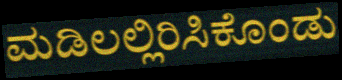
ಮಡಿಲಲ್ಲಿರಿಸಿಕೊಂಡು